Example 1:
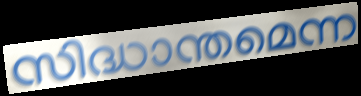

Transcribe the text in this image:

സിദ്ധാന്തമെന്ന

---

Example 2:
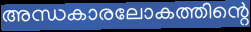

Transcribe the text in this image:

അന്ധകാരലോകത്തിന്റെ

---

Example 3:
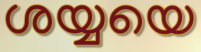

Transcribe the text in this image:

ശയ്യയെ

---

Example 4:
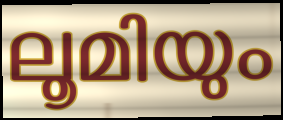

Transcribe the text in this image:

ലൂമിയും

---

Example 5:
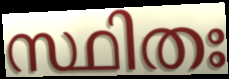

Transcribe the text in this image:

സ്ഥിതഃ